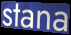
stana